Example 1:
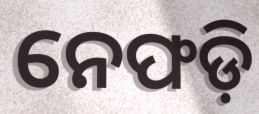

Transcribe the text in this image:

ନେଫଡ଼ି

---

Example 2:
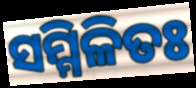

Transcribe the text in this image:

ସମ୍ମିଳିତଃ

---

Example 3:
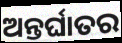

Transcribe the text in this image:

ଅନ୍ତର୍ଘାତର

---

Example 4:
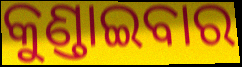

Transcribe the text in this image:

କୁଣ୍ଡାଇବାର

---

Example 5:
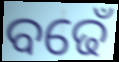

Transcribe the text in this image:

ବଢେଁ